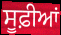
ਸੂਫ਼ੀਆਂ